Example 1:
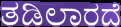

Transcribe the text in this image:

ತಡಿಲಾರದೆ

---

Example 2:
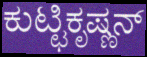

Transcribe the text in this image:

ಕುಟ್ಟಿಕೃಷ್ಣನ್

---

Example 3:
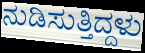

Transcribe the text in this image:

ನುಡಿಸುತ್ತಿದ್ದಳು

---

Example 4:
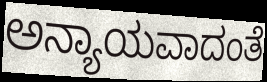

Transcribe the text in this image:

ಅನ್ಯಾಯವಾದಂತೆ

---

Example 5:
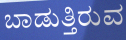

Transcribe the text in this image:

ಬಾಡುತ್ತಿರುವ